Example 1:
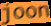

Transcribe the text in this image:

joon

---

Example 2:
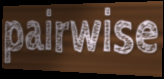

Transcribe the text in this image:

pairwise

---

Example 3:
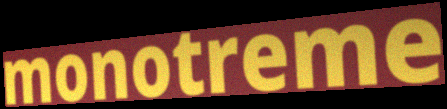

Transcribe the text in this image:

monotreme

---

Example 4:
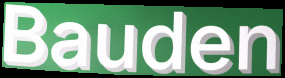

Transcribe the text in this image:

Bauden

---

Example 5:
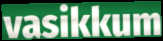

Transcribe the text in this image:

vasikkum